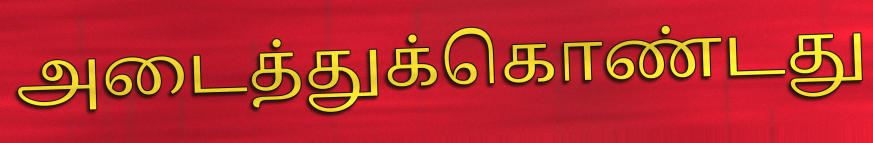
அடைத்துக்கொண்டது